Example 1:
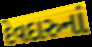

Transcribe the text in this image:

દેવદારુનાં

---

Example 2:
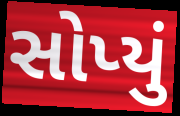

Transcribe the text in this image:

સોપ્યું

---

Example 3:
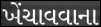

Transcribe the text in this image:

ખેંચાવવાના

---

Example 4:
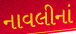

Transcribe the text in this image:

નાવલીનાં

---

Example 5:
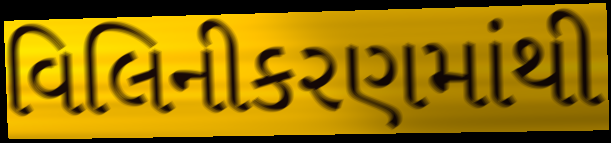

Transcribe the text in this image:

વિલિનીકરણમાંથી